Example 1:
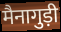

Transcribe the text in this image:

मैनागुड़ी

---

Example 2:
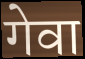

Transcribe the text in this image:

गेवा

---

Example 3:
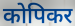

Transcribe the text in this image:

कोपिकर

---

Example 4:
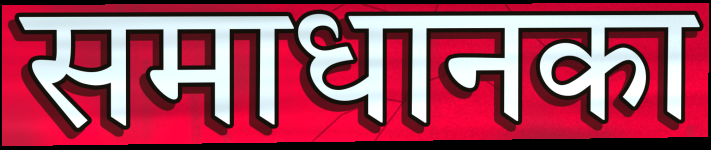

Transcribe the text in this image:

समाधानका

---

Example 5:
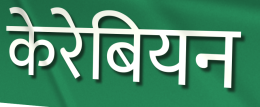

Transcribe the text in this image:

केरेबियन